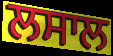
ਲਸਾਲ